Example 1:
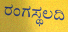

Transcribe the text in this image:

ರಂಗಸ್ಥಲದಿ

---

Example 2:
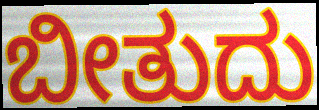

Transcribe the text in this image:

ಬೀತುದು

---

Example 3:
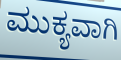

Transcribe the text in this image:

ಮುಕ್ಯವಾಗಿ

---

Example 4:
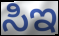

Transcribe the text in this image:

ಸಿಇ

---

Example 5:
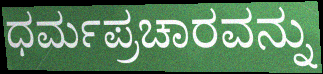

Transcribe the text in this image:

ಧರ್ಮಪ್ರಚಾರವನ್ನು